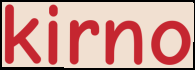
kirno